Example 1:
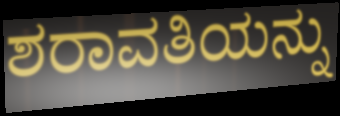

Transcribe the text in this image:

ಶರಾವತಿಯನ್ನು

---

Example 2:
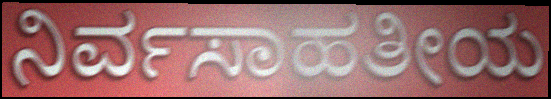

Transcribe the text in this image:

ನಿರ್ವಸಾಹತೀಯ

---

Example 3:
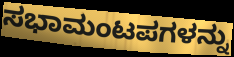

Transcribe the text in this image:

ಸಭಾಮಂಟಪಗಳನ್ನು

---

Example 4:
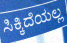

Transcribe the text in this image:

ಸಿಕ್ಕಿದೆಯಲ್ಲ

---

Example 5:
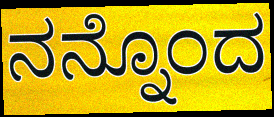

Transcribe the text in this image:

ನನ್ನೊಂದ